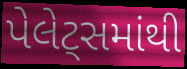
પેલેટ્સમાંથી